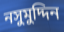
নসুমুদ্দিন